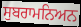
ਸੁਬਰਾਮਨਿਅਨ